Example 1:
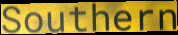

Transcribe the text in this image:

Southern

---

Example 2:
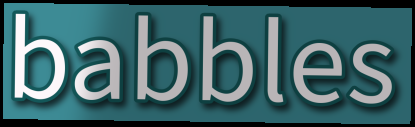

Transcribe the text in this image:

babbles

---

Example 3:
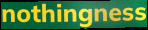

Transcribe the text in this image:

nothingness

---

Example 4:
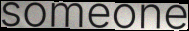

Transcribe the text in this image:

someone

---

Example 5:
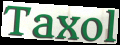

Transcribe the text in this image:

Taxol